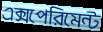
এক্সপেরিমেন্ট